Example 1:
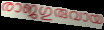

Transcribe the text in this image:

രാജഗുരുവായ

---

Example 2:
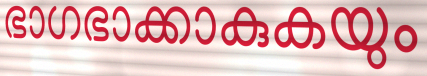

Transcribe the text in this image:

ഭാഗഭാക്കാകുകയും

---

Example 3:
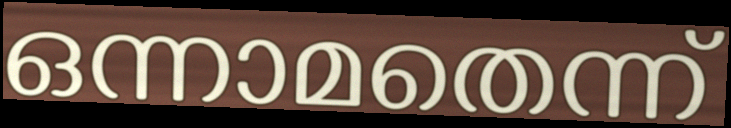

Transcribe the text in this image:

ഒന്നാമതെന്ന്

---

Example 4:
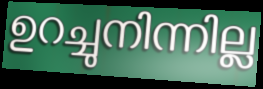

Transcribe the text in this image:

ഉറച്ചുനിന്നില്ല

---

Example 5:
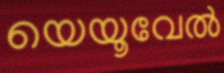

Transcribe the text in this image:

യെയൂവേൽ